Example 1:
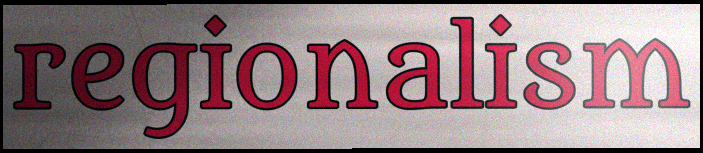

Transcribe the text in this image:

regionalism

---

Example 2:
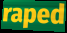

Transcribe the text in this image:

raped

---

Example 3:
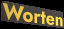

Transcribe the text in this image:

Worten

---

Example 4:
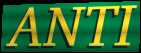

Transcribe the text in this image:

ANTI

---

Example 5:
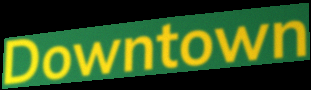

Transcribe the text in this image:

Downtown